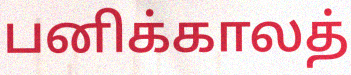
பனிக்காலத்